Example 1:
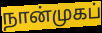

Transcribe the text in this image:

நான்முகப்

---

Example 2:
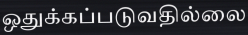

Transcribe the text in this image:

ஒதுக்கப்படுவதில்லை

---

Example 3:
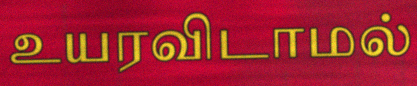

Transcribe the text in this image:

உயரவிடாமல்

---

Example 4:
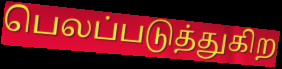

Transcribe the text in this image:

பெலப்படுத்துகிற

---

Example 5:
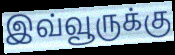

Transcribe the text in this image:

இவ்வூருக்கு